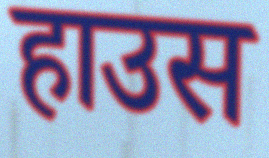
हाउस